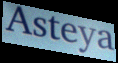
Asteya